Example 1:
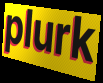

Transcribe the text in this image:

plurk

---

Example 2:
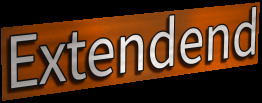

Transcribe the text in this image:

Extendend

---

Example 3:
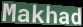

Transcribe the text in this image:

Makhad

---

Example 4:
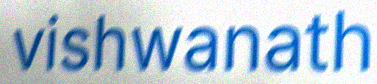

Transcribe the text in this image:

vishwanath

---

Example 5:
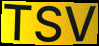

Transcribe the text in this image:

TSV